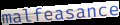
malfeasance